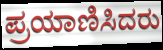
ಪ್ರಯಾಣಿಸಿದರು